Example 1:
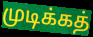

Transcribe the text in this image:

முடிக்கத்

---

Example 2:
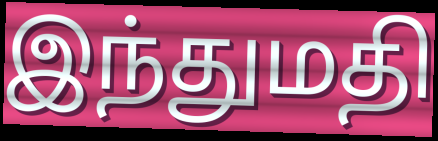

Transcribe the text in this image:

இந்துமதி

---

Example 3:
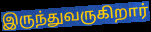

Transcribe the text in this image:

இருந்துவருகிறார்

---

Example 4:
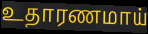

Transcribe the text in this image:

உதாரணமாய்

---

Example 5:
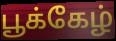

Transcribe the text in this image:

பூக்கேழ்